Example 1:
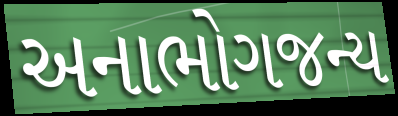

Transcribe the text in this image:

અનાભોગજન્ય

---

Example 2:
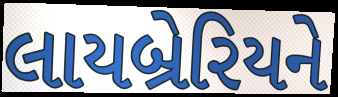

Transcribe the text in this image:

લાયબ્રેરિયને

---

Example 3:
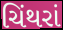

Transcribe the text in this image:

ચિંથરાં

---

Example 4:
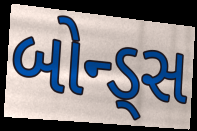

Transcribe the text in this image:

બોન્ડ્સ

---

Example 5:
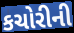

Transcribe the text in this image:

કચોરીની